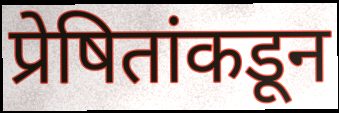
प्रेषितांकडून